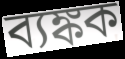
ব্যঙ্কক